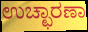
ಉಚ್ಛಾರಣಾ